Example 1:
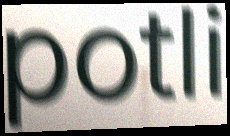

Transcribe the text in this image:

potli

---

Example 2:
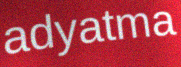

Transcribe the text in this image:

adyatma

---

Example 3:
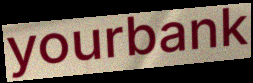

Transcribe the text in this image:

yourbank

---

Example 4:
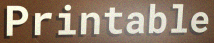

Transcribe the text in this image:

Printable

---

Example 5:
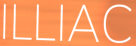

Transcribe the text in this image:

ILLIAC